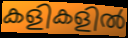
കളികളിൽ